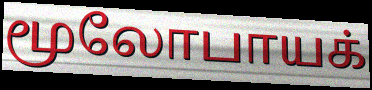
மூலோபாயக்